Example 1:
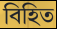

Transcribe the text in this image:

বিহিত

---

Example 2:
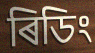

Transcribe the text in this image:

ৰিডিং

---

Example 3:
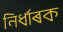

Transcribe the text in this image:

নিৰ্ধাৰক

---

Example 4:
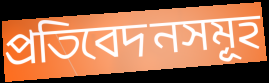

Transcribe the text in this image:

প্ৰতিবেদনসমূহ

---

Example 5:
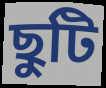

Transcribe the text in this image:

ছুটি